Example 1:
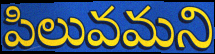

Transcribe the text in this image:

పిలువమని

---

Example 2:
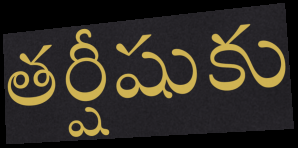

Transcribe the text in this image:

తర్షీషుకు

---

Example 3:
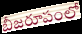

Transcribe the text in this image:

బీజరూపంలో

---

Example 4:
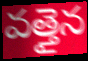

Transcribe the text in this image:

వత్తైన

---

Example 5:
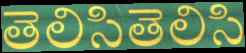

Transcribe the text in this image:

తెలిసితెలిసి